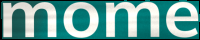
mome